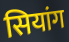
सियांग